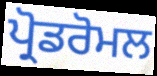
ਪ੍ਰੋਡਰੋਮਲ